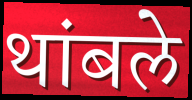
थांबले